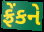
ફ્રેંકને